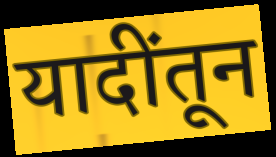
यादींतून